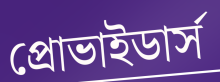
প্রোভাইডার্স